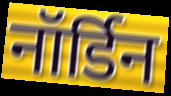
नॉर्डिन